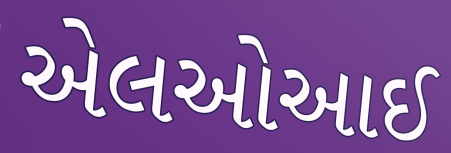
એલઓઆઈ